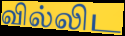
வில்லிட